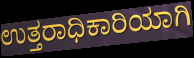
ಉತ್ತರಾಧಿಕಾರಿಯಾಗಿ